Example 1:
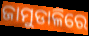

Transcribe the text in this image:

ଜାମୁଡାଳିରେ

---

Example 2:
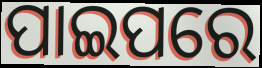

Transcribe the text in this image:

ପାଇପରେ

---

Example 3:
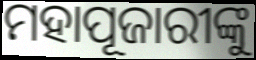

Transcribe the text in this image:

ମହାପୂଜାରୀଙ୍କୁ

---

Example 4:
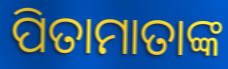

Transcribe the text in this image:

ପିତାମାତାଙ୍କ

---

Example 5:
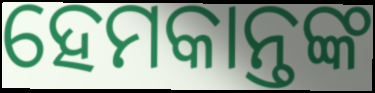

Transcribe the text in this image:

ହେମକାନ୍ତଙ୍କ